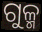
ଗୁଳ୍ମ